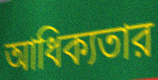
আধিক্যতার